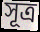
সূত্ৰ